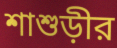
শাশুড়ীর